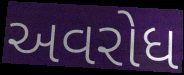
અવરોધ